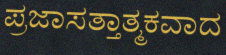
ಪ್ರಜಾಸತ್ತಾತ್ಮಕವಾದ